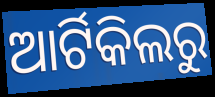
ଆର୍ଟିକିଲରୁ